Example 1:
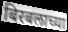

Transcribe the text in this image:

बिरबलाच्या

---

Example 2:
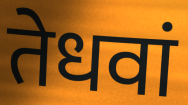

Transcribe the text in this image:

तेधवां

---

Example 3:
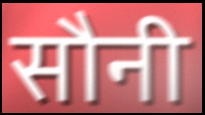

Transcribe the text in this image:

सौनी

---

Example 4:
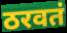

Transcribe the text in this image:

ठरवतं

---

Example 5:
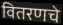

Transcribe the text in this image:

वितरणचे